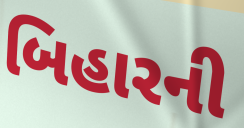
બિહારની